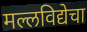
मल्लविद्येचा